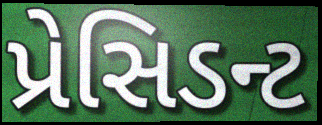
પ્રેસિડન્ટ